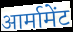
आर्मामेंट